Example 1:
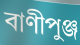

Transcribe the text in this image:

বাণীপুঞ্জ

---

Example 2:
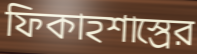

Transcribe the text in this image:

ফিকাহশাস্ত্রের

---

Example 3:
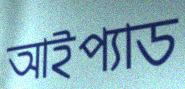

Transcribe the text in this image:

আইপ্যাড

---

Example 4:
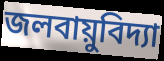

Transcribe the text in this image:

জলবায়ুবিদ্যা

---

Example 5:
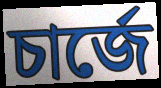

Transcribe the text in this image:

চার্জে